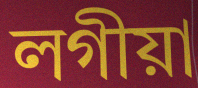
লগীয়া